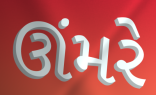
ઊંમરે